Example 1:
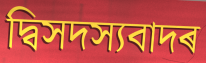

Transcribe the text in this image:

দ্বিসদস্যবাদৰ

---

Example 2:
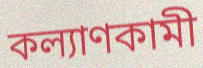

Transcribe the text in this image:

কল্যাণকামী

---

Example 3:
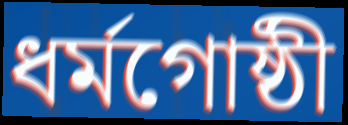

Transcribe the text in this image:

ধৰ্মগোষ্ঠী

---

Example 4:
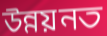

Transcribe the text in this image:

উন্নয়নত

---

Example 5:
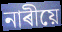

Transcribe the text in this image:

নাৰীয়ে